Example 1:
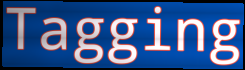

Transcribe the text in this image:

Tagging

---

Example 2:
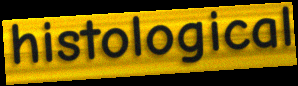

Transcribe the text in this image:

histological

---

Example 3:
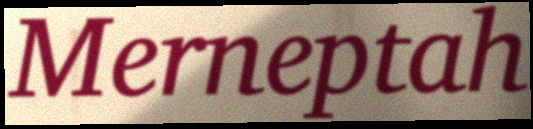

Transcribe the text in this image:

Merneptah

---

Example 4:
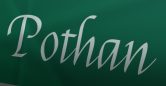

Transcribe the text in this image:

Pothan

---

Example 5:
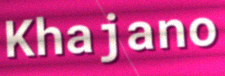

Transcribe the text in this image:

Khajano